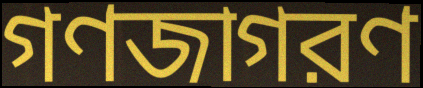
গণজাগরণ